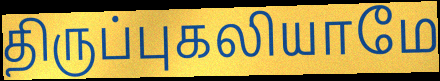
திருப்புகலியாமே